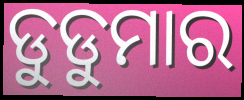
ଡୁଡୁମାର